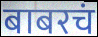
बाबरचं